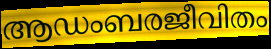
ആഡംബരജീവിതം